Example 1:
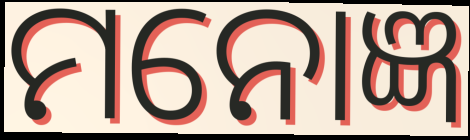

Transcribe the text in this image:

ମନୋଜ୍ଞ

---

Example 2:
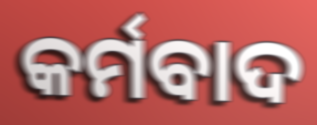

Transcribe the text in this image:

କର୍ମବାଦ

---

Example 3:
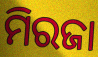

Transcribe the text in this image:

ମିରଜା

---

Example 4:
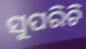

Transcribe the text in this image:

ସୁପରିଚି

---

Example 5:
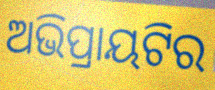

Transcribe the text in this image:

ଅଭିପ୍ରାୟଟିର